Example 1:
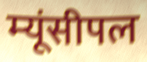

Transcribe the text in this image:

म्यूंसीपल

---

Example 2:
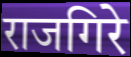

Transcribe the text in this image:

राजगिरे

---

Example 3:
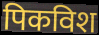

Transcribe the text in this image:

पिकविश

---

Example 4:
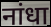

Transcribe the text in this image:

नांधा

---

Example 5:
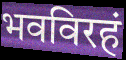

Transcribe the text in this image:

भवविरहं